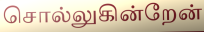
சொல்லுகின்றேன்